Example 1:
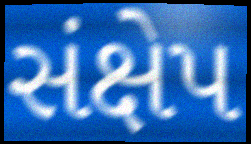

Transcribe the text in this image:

સંક્ષેપ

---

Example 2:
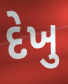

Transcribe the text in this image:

દેખુ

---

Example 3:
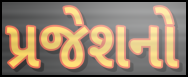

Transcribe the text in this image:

પ્રજેશનો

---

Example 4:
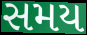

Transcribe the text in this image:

સમય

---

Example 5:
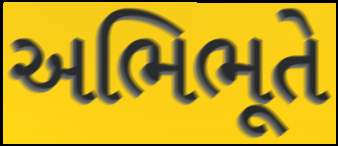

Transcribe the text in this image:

અભિભૂતે